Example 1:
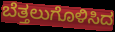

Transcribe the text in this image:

ಬೆತ್ತಲುಗೊಳಿಸಿದ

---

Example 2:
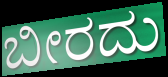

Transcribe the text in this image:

ಬೀರದು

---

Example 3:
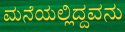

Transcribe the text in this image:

ಮನೆಯಲ್ಲಿದ್ದವನು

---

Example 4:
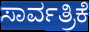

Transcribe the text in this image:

ಸಾರ್ವತ್ರಿಕೆ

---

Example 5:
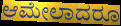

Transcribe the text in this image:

ಆಮೇಲಾದರೂ